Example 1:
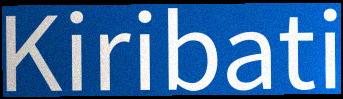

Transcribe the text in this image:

Kiribati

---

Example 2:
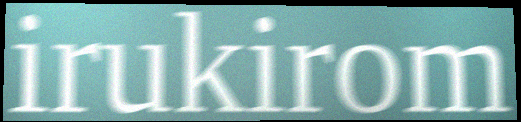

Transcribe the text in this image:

irukirom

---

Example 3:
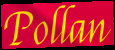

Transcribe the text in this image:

Pollan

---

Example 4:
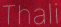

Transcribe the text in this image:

Thali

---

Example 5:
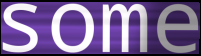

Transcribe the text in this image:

some